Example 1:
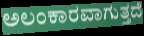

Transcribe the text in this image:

ಅಲಂಕಾರವಾಗುತ್ತದೆ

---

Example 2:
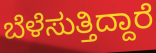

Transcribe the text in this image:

ಬೆಳೆಸುತ್ತಿದ್ದಾರೆ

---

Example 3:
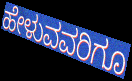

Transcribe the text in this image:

ಹೇಳುವವರಿಗೂ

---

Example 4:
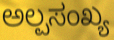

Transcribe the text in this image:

ಅಲ್ಪಸಂಖ್ಯ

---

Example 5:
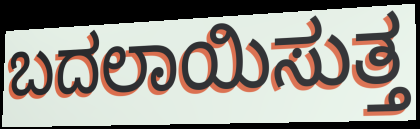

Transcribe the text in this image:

ಬದಲಾಯಿಸುತ್ತ